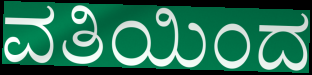
ವತಿಯಿಂದ